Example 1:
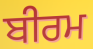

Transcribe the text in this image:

ਬੀਰਮ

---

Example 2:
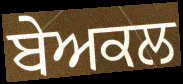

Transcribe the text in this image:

ਬੇਅਕਲ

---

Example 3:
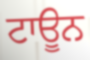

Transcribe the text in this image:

ਟਾਊਨ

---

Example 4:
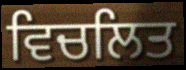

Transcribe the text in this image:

ਵਿਚਲਿਤ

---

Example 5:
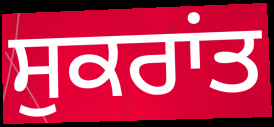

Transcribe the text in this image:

ਸੁਕਰਾਂਤ